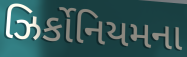
ઝિર્કોનિયમના